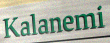
Kalanemi